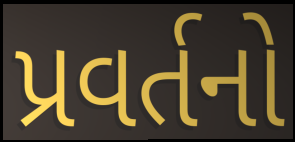
પ્રવર્તનો